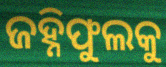
ଜହ୍ନିଫୁଲକୁ